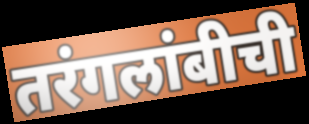
तरंगलांबीची